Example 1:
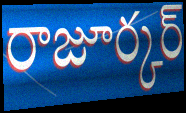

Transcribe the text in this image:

రాజూర్కర్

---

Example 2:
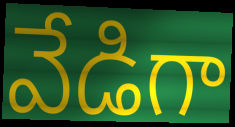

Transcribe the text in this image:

వేడిగా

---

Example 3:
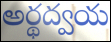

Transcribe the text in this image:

అర్థద్వయ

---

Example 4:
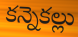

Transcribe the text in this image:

కన్నెకల్లు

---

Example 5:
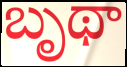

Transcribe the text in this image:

బృథా